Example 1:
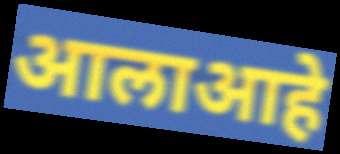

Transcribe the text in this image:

आलाआहे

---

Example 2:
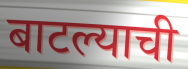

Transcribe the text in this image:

बाटल्याची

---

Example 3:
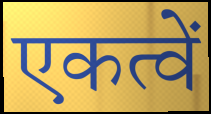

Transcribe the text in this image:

एकत्वें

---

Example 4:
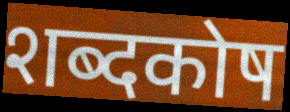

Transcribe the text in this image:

शब्दकोष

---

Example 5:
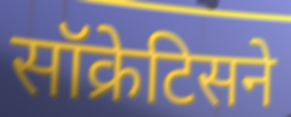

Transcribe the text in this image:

सॉक्रेटिसने